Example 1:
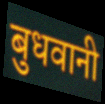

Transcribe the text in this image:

बुधवानी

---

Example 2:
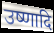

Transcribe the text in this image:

उष्णादि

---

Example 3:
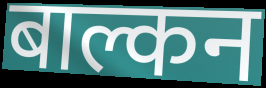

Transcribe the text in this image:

बाल्कन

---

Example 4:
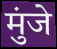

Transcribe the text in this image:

मुंजे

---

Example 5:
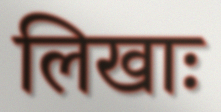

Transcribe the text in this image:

लिखाः